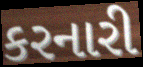
કરનારી